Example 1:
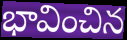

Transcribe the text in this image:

భావించిన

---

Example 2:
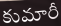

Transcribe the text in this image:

కుమారీ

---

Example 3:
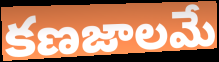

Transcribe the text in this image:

కణజాలమే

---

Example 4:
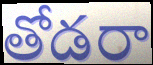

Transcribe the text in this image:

తోడరా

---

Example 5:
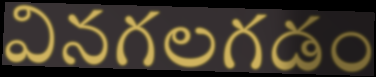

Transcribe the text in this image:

వినగలగడం